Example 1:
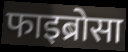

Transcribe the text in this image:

फाइब्रोसा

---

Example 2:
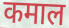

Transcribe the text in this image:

कमाल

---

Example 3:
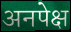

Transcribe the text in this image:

अनपेक्ष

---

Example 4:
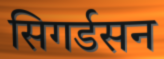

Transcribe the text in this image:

सिगर्डसन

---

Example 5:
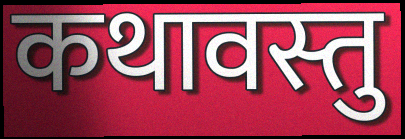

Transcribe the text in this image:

कथावस्‍तु